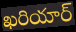
ఖరియార్